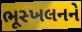
ભૂસ્ખલનને